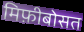
मिफ़ीबोसत